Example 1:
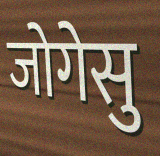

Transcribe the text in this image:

जोगेसु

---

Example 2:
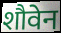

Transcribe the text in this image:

शौवेन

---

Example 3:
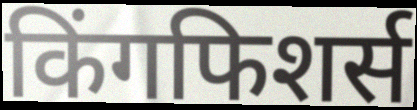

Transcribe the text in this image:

किंगफिशर्स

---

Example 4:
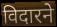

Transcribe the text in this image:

विदारने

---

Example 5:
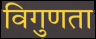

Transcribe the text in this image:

विगुणता